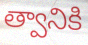
త్వానికి